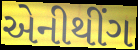
એનીથીંગ